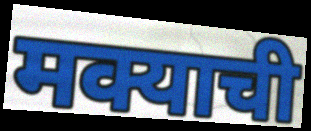
मक्याची